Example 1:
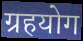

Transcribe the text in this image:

ग्रहयोग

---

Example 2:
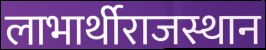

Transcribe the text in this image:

लाभार्थीराजस्थान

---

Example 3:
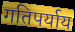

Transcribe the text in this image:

गतिपर्याय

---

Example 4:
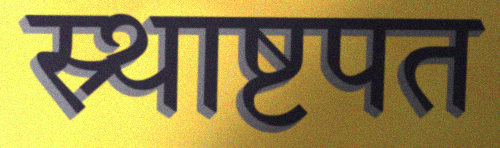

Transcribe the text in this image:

स्र्थाष्टपत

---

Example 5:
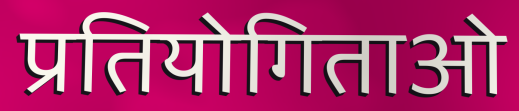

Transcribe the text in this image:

प्रतियोगिताओ